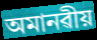
অমানৱীয়